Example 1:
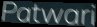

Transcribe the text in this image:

Patwari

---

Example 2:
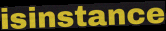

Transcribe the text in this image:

isinstance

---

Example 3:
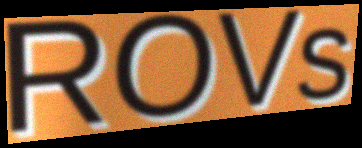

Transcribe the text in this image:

ROVs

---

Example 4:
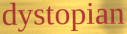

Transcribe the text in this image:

dystopian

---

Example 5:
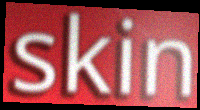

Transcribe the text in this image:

skin